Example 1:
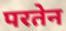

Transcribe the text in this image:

परतेन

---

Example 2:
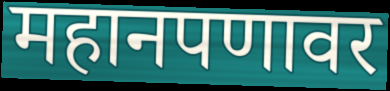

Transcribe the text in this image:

महानपणावर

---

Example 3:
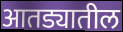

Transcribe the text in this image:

आतड्यातील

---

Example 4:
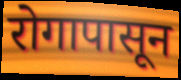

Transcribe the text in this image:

रोगापासून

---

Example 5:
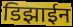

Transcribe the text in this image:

डिझाईन